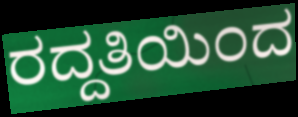
ರದ್ದತಿಯಿಂದ